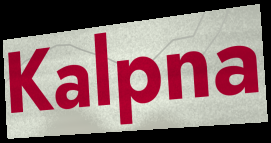
Kalpna